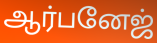
ஆர்பனேஜ்